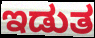
ಇಡುತ